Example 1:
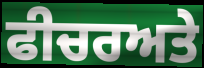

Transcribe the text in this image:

ਫੀਚਰਅਤੇ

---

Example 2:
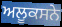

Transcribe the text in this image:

ਅਲੂਕਸਨੇ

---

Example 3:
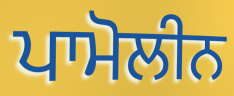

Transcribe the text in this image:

ਪਾਮੋਲੀਨ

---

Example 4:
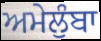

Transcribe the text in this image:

ਅਮੇਲੁੰਬਾ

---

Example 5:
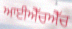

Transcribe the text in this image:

ਆਈਐੱਚਐੱਚ